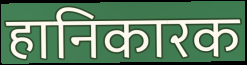
हानिकारक